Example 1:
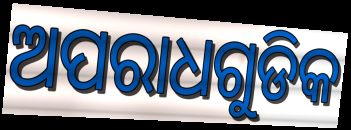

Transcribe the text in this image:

ଅପରାଧଗୁଡିକ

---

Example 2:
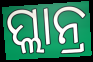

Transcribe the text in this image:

ପ୍ଲାନ୍ର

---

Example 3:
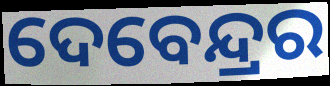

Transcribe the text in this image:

ଦେବେନ୍ଦ୍ରର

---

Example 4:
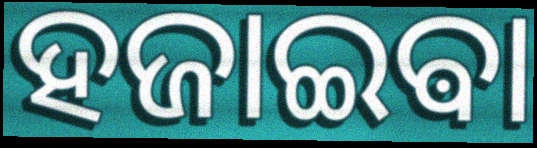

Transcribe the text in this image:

ହଜାଇଵା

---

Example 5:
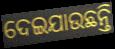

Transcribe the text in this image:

ଦେଇଯାଉଛନ୍ତି